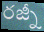
రజ్నీ